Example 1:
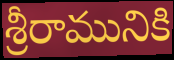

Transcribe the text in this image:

శ్రీరామునికి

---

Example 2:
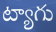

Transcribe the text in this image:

ట్యాగు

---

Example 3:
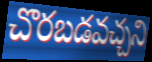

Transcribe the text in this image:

చొరబడవచ్చని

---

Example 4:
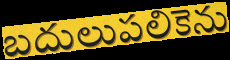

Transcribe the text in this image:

బదులుపలికెను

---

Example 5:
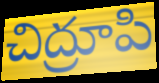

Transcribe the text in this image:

చిద్రూపి